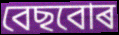
বেছবোৰ